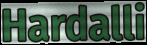
Hardalli